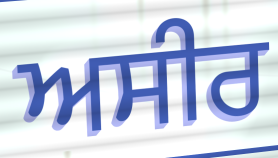
ਅਸੀਰ